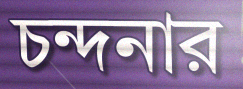
চন্দনার